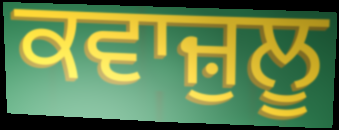
ਕਵਾਜ਼ੁਲੂ